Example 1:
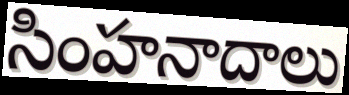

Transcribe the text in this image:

సింహనాదాలు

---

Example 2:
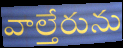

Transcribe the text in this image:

వాల్తేరును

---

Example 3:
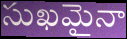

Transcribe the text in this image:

సుఖమైనా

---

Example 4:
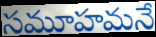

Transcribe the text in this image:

సమూహమనే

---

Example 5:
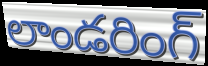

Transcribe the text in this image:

లాండరింగ్